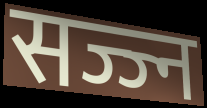
सज्ज्न